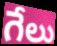
గేలు